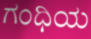
ಗಂಧಿಯ